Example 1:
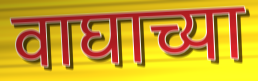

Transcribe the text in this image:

वाघाच्या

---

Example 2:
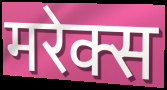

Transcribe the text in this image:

मरेक्स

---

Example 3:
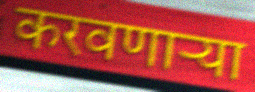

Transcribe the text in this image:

करवणाऱ्या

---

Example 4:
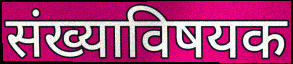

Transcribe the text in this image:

संख्याविषयक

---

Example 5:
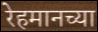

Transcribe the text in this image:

रेहमानच्या